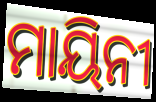
ମାୟିନୀ